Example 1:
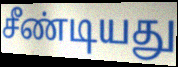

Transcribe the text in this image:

சீண்டியது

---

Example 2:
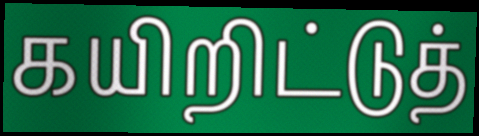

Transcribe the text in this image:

கயிறிட்டுத்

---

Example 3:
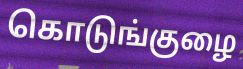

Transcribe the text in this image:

கொடுங்குழை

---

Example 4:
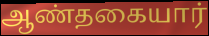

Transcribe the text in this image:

ஆண்தகையார்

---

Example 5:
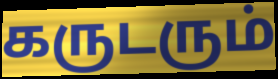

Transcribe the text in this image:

கருடரும்